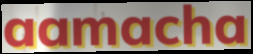
aamacha